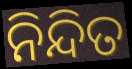
ନିନ୍ଦିତ